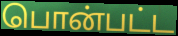
பொன்பட்ட